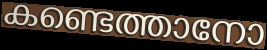
കണ്ടെത്താനോ